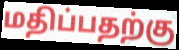
மதிப்பதற்கு